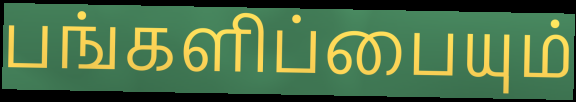
பங்களிப்பையும்